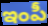
ఇంపీ